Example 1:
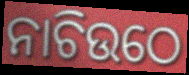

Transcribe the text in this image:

ନାଚିଉଠେ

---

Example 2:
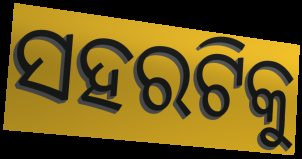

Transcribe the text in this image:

ସହରଟିକୁ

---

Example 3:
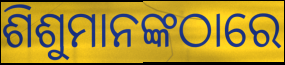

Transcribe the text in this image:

ଶିଶୁମାନଙ୍କଠାରେ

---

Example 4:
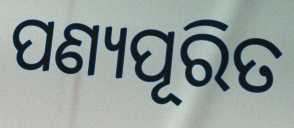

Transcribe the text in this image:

ପଣ୍ୟପୂରିତ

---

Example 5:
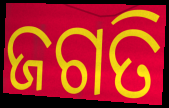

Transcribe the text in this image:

ଜଗତି